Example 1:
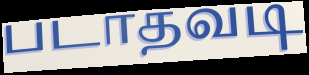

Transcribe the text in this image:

படாதவடி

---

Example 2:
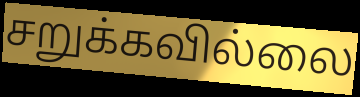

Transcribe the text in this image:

சறுக்கவில்லை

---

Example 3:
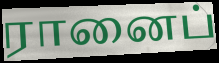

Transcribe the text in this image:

ரானைப்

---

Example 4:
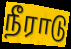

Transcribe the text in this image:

நீராடு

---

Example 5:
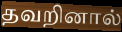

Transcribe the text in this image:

தவறினால்